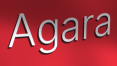
Agara